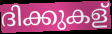
ദിക്കുകള്